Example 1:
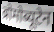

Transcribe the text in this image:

ब्रोमोब्यूटेन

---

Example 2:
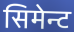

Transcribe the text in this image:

सिमेन्ट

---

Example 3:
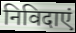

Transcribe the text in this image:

निविदाएं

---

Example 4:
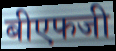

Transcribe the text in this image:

बीएफजी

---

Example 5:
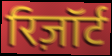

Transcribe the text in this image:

रिज़ॉर्ट